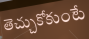
తెచ్చుకోకుంటే